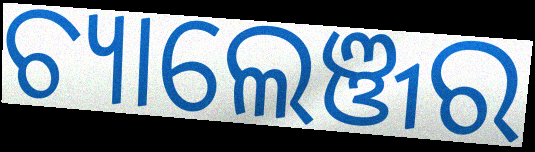
ଚ୍ୟାଲେଞ୍ଜର